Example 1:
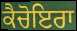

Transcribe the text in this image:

ਕੈਚੋਇਰਾ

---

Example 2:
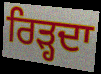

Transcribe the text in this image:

ਰਿੜ੍ਹਦਾ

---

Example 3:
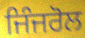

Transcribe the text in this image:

ਜਿੰਜਰੋਲ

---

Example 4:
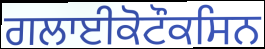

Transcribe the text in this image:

ਗਲਾਈਕੋਟੌਕਸਿਨ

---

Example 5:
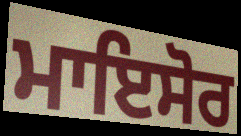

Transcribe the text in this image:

ਮਾਇਸੋਰ